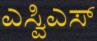
ಎಸ್ವಿಎಸ್